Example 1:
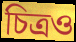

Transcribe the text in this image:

চিত্ৰও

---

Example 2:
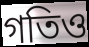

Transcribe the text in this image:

গতিও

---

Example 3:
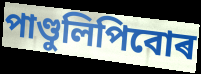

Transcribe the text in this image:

পাণ্ডুলিপিবোৰ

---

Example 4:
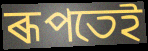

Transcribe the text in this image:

ৰূপতেই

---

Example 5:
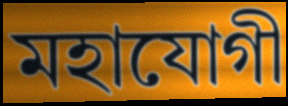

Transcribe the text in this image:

মহাযোগী